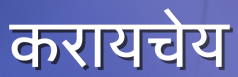
करायचेय